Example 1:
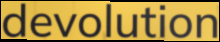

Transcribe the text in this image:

devolution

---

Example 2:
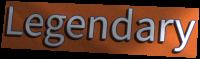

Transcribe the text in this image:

Legendary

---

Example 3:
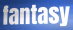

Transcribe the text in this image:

fantasy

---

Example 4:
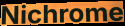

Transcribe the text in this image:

Nichrome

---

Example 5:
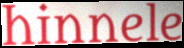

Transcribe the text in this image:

hinnele